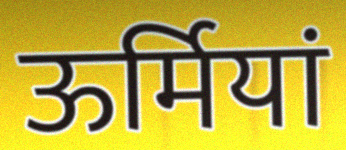
ऊर्मियां